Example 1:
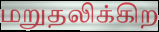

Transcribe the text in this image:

மறுதலிக்கிற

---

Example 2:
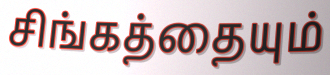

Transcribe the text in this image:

சிங்கத்தையும்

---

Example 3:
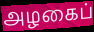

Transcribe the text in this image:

அழகைப்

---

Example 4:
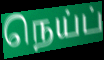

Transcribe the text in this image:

நெய்ப்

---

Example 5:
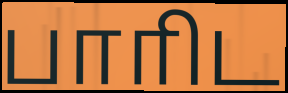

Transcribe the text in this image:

பாரிட